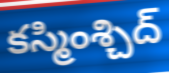
కస్మింశ్చిద్